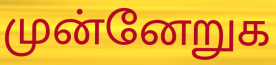
முன்னேறுக